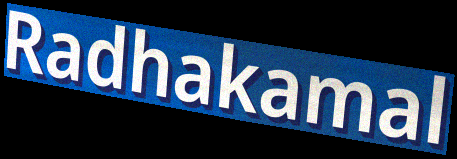
Radhakamal